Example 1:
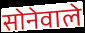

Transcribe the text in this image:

सोनेवाले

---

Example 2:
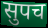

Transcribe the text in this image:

सुपच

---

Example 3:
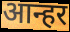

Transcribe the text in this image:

आन्हर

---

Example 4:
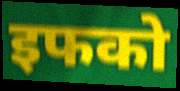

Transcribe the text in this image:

इफको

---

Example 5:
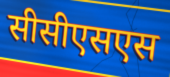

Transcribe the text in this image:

सीसीएसएस